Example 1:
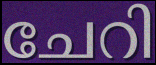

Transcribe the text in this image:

ചേറി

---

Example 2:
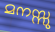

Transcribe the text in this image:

മനസ്സു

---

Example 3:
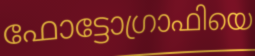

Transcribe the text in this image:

ഫോട്ടോഗ്രാഫിയെ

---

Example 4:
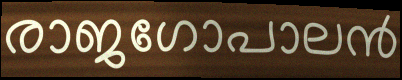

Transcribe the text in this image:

രാജഗോപാലൻ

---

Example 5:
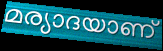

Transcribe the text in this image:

മര്യാദയാണ്